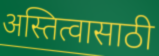
अस्तित्वासाठी